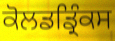
ਕੋਲਡਡ੍ਰਿੰਕਸ